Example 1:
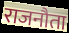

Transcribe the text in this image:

राजनौता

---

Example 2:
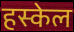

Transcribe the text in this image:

हस्केल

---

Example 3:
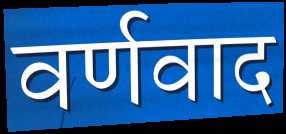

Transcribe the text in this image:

वर्णवाद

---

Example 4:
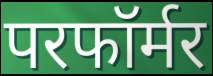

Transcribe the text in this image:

परफॉर्मर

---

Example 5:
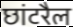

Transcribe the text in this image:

छांटरैल